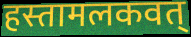
हस्तामलकवत्